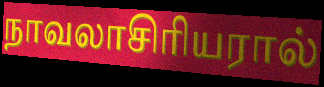
நாவலாசிரியரால்